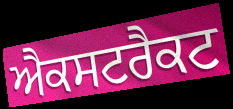
ਐਕਸਟਰੈਕਟ